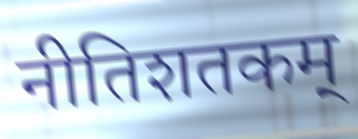
नीतिशतकम्